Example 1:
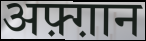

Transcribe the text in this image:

अफ़्ग़ान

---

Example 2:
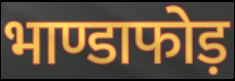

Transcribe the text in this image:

भाण्डाफोड़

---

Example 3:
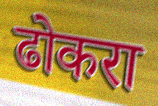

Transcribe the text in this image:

ढोकरा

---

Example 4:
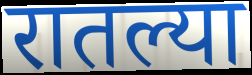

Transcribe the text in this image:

रातल्या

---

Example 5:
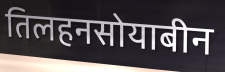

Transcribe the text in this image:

तिलहनसोयाबीन